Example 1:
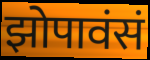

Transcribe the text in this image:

झोपावंसं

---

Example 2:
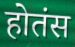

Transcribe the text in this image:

होतंस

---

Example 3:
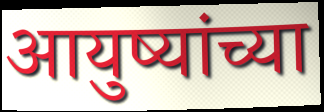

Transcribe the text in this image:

आयुष्यांच्या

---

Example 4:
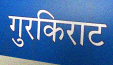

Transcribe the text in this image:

गुरकिराट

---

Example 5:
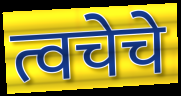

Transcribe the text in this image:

त्वचेचे